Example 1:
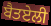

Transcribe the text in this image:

ਬੈਤਏਲੀ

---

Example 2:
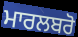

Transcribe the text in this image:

ਮਾਰਲਬਰੋ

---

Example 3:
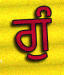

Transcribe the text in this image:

ਗੁੰ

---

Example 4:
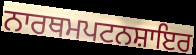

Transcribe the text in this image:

ਨਾਰਥਮਪਟਨਸ਼ਾਇਰ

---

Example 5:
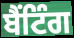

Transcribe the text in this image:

ਬੈਂਟਿੰਗ